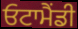
ਓਟਾਮੈਂਡੀ